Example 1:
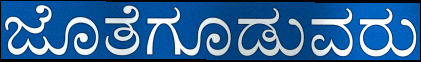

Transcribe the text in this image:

ಜೊತೆಗೂಡುವರು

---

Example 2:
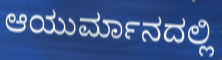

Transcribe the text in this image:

ಆಯುರ್ಮಾನದಲ್ಲಿ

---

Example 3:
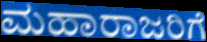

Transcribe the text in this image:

ಮಹಾರಾಜರಿಗೆ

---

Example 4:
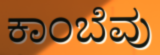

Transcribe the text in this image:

ಕಾಂಬೆವು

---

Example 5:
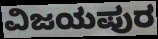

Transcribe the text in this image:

ವಿಜಯಪುರ